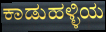
ಕಾಡುಹಳ್ಳಿಯ